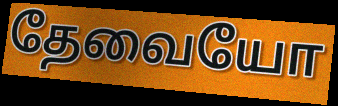
தேவையோ